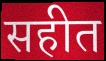
सहीत